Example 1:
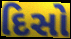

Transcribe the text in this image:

દિસો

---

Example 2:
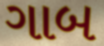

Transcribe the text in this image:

ગાબ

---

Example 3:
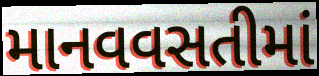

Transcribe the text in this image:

માનવવસતીમાં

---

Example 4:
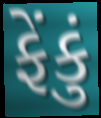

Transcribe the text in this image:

ફેંકું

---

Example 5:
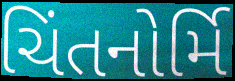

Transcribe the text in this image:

ચિંતનોર્મિ